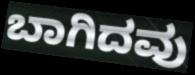
ಬಾಗಿದವು